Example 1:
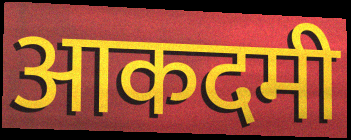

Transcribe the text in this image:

आकदमी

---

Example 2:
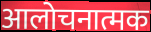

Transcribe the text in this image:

आलोचनात्मक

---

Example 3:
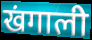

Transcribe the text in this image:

खंगाली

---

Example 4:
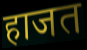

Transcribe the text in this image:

हाजत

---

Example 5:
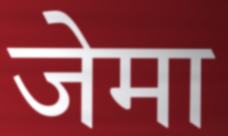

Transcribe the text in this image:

जेमा